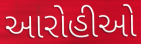
આરોહીઓ